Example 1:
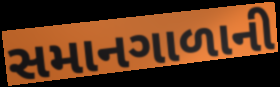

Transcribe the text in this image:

સમાનગાળાની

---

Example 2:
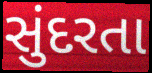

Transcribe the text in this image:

સુંદરતા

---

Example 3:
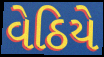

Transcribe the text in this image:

વેઠિયે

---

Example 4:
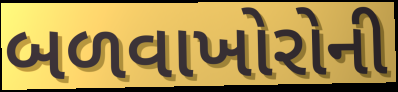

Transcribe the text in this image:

બળવાખોરોની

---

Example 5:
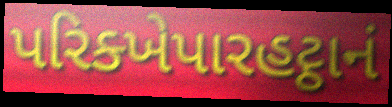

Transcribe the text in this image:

પરિક્ખેપારહટ્ઠાનં